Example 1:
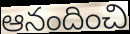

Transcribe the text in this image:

ఆనందించి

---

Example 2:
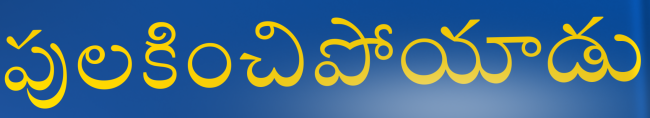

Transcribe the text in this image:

పులకించిపోయాడు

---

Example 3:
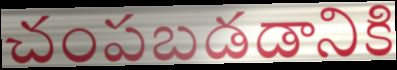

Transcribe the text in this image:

చంపబడడానికి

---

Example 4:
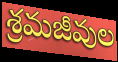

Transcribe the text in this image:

శ్రమజీవుల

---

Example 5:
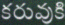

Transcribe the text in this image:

కరువుకి